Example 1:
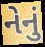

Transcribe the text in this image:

નેનું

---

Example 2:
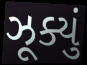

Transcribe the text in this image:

ઝૂક્યું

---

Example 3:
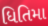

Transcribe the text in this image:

ધિતિમા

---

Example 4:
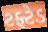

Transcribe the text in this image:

ટફ્ટેડ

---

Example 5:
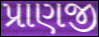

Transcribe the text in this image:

પ્રાણજી